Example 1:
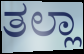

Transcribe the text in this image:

ತಲ್ಲಾ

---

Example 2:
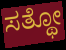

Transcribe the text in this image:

ಸತ್ಥೋ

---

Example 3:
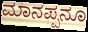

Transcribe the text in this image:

ಮಾನಪ್ಪನೂ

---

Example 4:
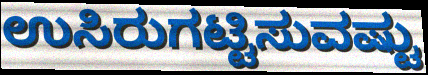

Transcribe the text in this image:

ಉಸಿರುಗಟ್ಟಿಸುವಷ್ಟು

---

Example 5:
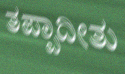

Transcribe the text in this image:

ತಪ್ಪಾದೀತು